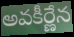
అవకీర్ణేన